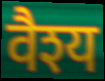
वैश्य